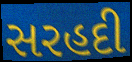
સરહદી